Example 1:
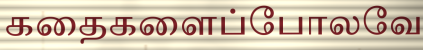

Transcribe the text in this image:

கதைகளைப்போலவே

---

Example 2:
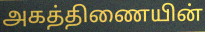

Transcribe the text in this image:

அகத்திணையின்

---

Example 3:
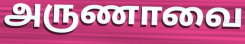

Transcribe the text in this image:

அருணாவை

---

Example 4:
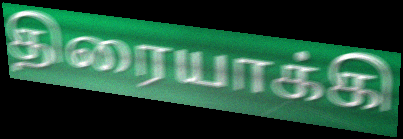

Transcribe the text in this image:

திரையாக்கி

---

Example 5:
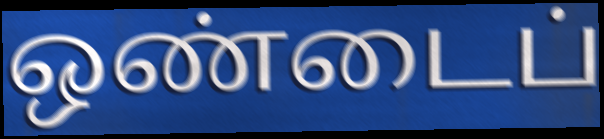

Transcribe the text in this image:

ஒண்டைப்